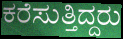
ಕರೆಸುತ್ತಿದ್ದರು